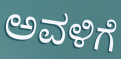
ಅವಳಿಗೆ